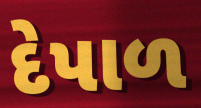
દેપાળ